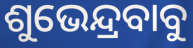
ଶୁଭେନ୍ଦ୍ରବାବୁ